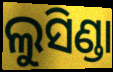
ଲୁସିଣ୍ଡା